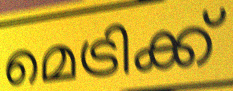
മെട്രിക്ക്